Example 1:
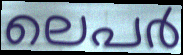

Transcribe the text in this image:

ലെപർ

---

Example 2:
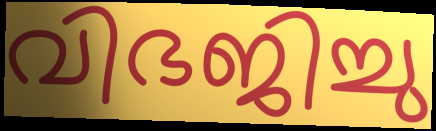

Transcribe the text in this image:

വിഭജിച്ചു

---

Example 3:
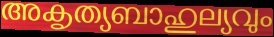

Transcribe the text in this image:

അകൃത്യബാഹുല്യവും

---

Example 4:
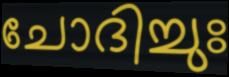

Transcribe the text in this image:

ചോദിച്ചുഃ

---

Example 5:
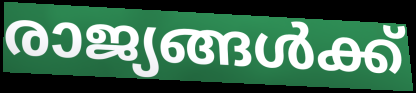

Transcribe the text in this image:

രാജ്യങ്ങൾക്ക്